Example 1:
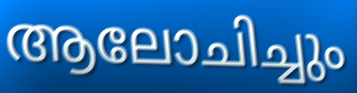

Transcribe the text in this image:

ആലോചിച്ചും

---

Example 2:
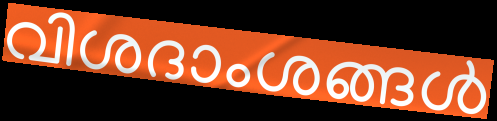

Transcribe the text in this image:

വിശദാംശങ്ങൾ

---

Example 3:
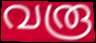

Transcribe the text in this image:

വരൂ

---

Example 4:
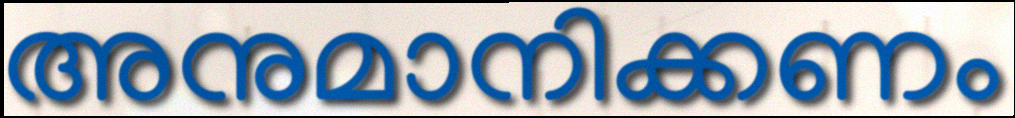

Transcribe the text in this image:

അനുമാനിക്കണം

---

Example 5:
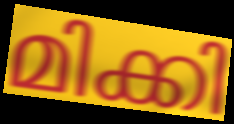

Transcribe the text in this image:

മിക്കി